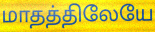
மாதத்திலேயே